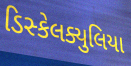
ડિસ્કેલક્યુલિયા